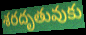
శరదృతువుకు